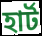
হাৰ্ট